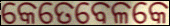
କେତେବେଳକେ